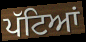
ਪੱਟਿਆਂ